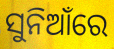
ସୁନିଆଁରେ